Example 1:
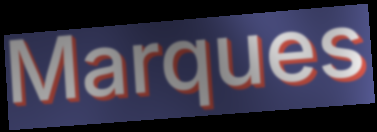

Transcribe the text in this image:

Marques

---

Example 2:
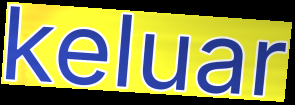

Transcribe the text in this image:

keluar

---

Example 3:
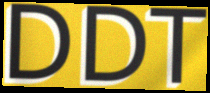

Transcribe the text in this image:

DDT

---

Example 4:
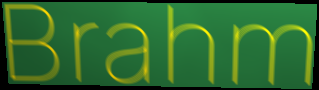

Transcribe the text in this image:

Brahm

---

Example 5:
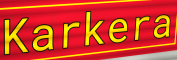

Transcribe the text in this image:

Karkera